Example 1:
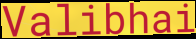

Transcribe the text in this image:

Valibhai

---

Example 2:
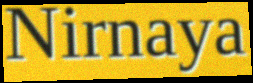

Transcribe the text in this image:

Nirnaya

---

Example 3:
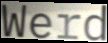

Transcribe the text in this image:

Werd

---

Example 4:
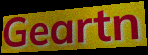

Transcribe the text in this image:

Geartn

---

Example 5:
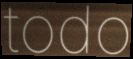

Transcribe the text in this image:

todo